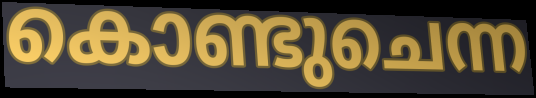
കൊണ്ടുചെന്ന